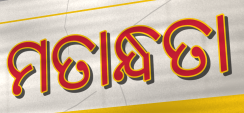
ମତାନ୍ଧତା